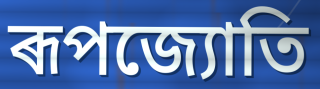
ৰূপজ্যোতি